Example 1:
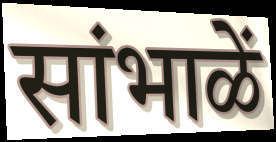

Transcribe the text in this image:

सांभाळें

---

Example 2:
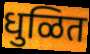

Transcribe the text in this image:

धुळित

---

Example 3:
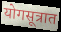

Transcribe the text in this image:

योगसूत्रात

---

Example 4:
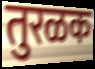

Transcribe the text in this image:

तुरळक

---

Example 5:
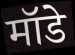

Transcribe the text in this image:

मॉडे